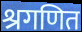
श्रगणित